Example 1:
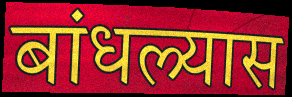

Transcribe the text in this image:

बांधल्यास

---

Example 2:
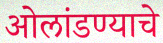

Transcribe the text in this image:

ओलांडण्याचे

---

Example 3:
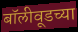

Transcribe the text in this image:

बॉलीवूडच्या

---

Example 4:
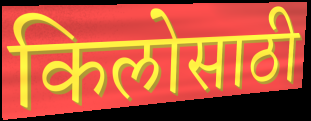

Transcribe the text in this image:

किलोसाठी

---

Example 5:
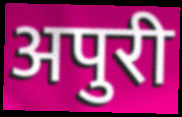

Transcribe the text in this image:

अपुरी